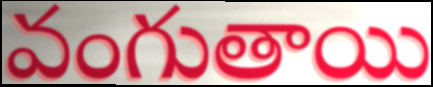
వంగుతాయి